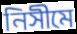
নিসীমে